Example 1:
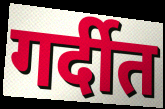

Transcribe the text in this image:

गर्दीत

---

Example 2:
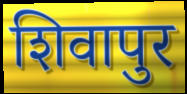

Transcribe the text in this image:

शिवापुर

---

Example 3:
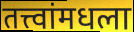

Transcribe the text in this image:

तत्त्वांमधला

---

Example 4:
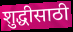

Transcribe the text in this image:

शुद्धीसाठी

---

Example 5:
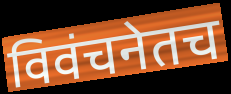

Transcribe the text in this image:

विवंचनेतच